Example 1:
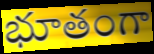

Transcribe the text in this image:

భూతంగా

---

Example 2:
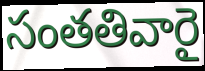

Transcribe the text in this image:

సంతతివారై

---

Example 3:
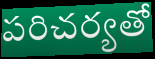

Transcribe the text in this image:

పరిచర్యతో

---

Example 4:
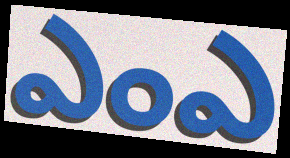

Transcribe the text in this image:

ఎంఎ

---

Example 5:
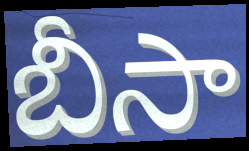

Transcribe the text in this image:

బీసా